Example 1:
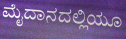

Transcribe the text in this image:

ಮೈದಾನದಲ್ಲಿಯೂ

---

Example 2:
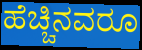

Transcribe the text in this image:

ಹೆಚ್ಚಿನವರೂ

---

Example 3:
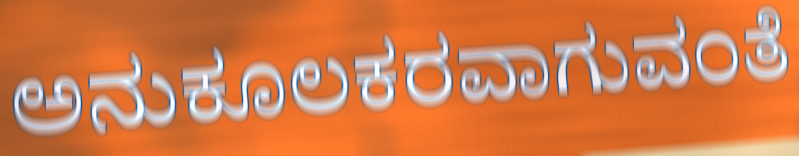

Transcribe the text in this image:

ಅನುಕೂಲಕರವಾಗುವಂತೆ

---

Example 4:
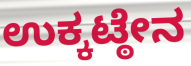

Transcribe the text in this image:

ಉಕ್ಕಟ್ಠೇನ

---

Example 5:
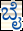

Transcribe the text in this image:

ಬೈ